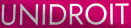
UNIDROIT